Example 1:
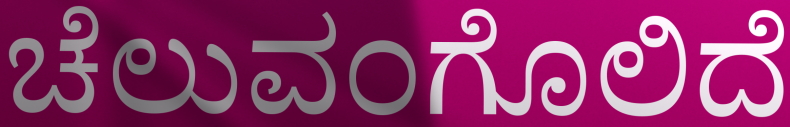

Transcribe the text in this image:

ಚೆಲುವಂಗೊಲಿದೆ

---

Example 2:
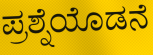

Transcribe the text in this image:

ಪ್ರಶ್ನೆಯೊಡನೆ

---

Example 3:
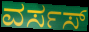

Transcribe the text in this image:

ವರ್ಸಸ್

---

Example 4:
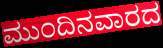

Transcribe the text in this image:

ಮುಂದಿನವಾರದ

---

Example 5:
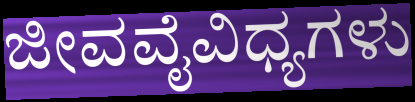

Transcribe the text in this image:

ಜೀವವೈವಿಧ್ಯಗಳು